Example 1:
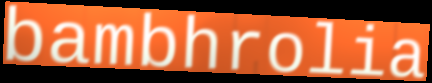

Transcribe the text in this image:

bambhrolia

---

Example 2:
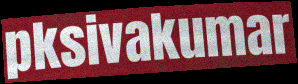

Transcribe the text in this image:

pksivakumar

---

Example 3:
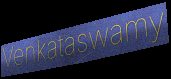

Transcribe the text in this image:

Venkataswamy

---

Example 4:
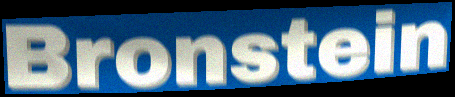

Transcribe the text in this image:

Bronstein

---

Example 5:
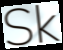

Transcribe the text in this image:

Sk